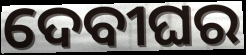
ଦେବୀଘର